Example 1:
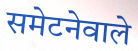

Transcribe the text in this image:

समेटनेवाले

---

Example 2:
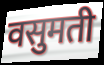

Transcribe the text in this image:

वसुमती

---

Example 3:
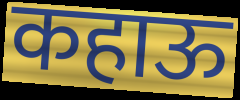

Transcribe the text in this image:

कहाऊ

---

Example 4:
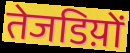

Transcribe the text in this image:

तेजडिय़ों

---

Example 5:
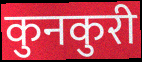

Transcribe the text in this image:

कुनकुरी